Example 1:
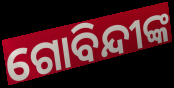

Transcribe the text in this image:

ଗୋବିନ୍ଦୀଙ୍କ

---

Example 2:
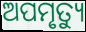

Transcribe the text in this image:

ଅପମୃତ୍ୟୁ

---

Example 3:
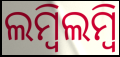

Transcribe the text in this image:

ଲମ୍ବିଲମ୍ବି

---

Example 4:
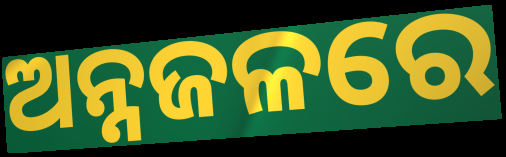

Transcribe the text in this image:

ଅନ୍ନଜଳରେ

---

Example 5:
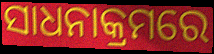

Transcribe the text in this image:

ସାଧନାକ୍ରମରେ